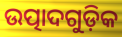
ଉତ୍ପାଦଗୁଡ଼ିକ